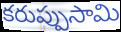
కరుప్పుసామి